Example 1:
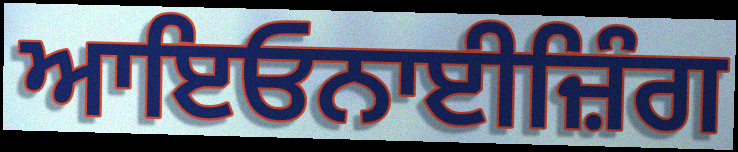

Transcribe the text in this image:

ਆਇਓਨਾਈਜ਼ਿੰਗ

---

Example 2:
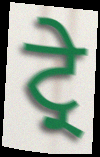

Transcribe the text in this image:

ਟ੍ਰੇ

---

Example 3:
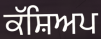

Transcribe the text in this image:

ਕੱਸ਼ਿਅਪ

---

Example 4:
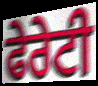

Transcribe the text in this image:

ਫੇਰੇਟੀ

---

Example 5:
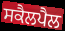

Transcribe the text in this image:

ਸਕੈਲਪੈਲ